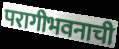
परागीभवनाची